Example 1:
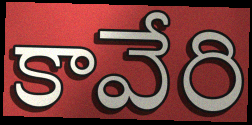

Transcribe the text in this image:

కావేరి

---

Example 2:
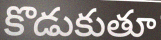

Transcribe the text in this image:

కొడుకుతూ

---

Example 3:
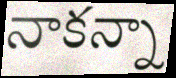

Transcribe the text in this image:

నాకన్నా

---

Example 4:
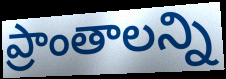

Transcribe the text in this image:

ప్రాంతాలన్ని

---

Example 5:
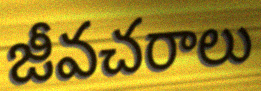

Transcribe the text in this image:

జీవచరాలు